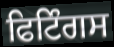
ਫਿਟਿੰਗਸ